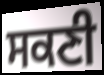
ਸਕਣੀ